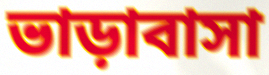
ভাড়াবাসা